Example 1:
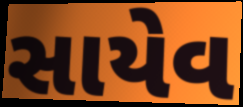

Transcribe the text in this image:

સાયેવ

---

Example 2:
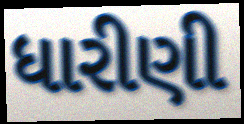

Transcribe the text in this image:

ધારીણી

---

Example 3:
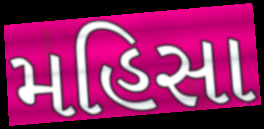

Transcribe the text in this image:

મહિસા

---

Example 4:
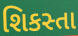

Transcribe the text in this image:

શિકસ્તા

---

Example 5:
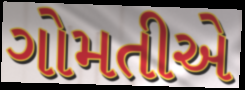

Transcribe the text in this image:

ગોમતીએ